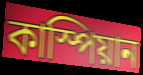
কাস্পিয়ান